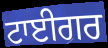
ਟਾਈਗਰ